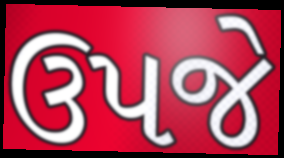
ઉપજે